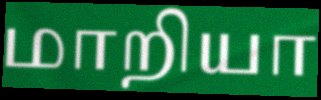
மாறியா